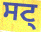
ਸਟ੍